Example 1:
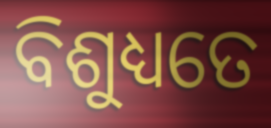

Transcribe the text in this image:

ବିଶୁଧ୍ୟତେ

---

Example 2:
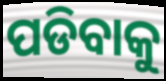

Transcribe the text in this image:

ପଡିବାକୁ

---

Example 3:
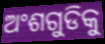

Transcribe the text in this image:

ଅଂଶଗୁଡିକୁ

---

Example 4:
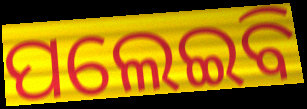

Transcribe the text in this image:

ପଲେଇବି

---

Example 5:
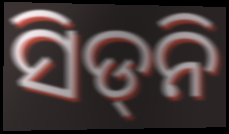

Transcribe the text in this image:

ସିଡ୍‍ନି